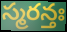
స్మరన్తః